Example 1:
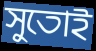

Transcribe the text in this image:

সুতোই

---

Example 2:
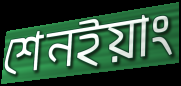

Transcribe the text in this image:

শেনইয়াং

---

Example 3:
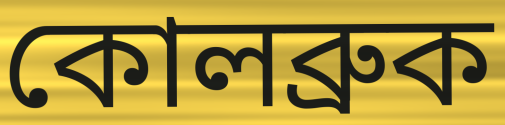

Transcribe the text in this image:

কোলব্রুক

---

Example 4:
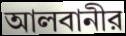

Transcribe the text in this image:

আলবানীর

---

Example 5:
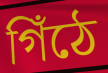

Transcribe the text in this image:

গিঁঠে